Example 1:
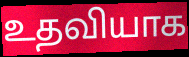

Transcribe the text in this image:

உதவியாக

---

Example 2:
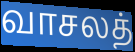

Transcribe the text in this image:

வாசலத்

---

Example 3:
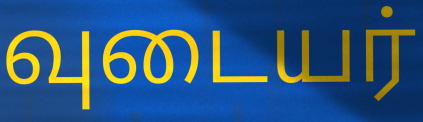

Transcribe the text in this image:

வுடையர்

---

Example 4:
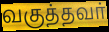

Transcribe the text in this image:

வகுத்தவர்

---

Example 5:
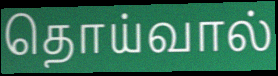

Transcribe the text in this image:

தொய்வால்